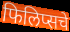
फिलिप्सचे